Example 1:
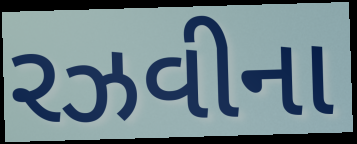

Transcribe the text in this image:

રઝવીના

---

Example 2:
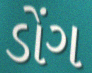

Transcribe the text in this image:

ડોંગ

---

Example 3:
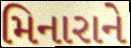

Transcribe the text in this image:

મિનારાને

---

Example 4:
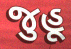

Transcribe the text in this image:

જુહૂ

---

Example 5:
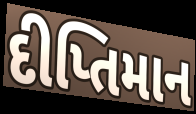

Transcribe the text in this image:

દીપ્તિમાન